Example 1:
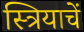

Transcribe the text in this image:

स्त्रियाचें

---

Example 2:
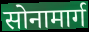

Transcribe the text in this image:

सोनामार्ग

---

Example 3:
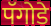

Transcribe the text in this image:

पॅगोडे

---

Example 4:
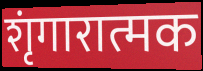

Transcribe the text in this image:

शृंगारात्मक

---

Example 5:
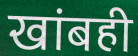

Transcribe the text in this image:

खांबही